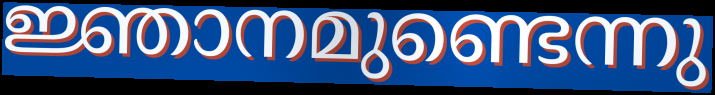
ജ്ഞാനമുണ്ടെന്നു